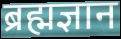
ब्रह्मज्ञान